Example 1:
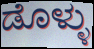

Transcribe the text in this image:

ಡೊಳ್ಳು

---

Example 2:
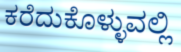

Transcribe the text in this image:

ಕರೆದುಕೊಳ್ಳುವಲ್ಲಿ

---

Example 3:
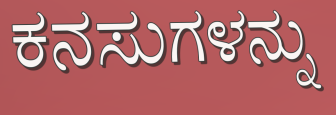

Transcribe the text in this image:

ಕನಸುಗಳನ್ನು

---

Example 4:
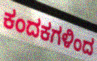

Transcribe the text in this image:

ಕಂದಕಗಳಿಂದ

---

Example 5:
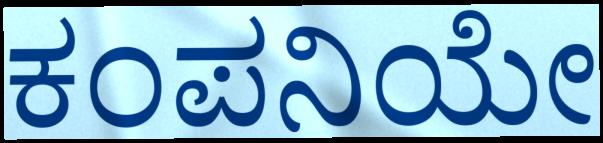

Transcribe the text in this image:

ಕಂಪನಿಯೇ